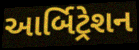
આર્બિટ્રેશન